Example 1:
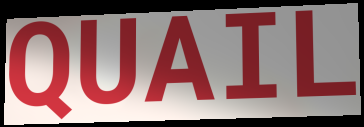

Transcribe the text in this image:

QUAIL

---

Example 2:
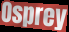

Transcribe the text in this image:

Osprey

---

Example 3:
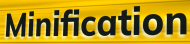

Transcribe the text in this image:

Minification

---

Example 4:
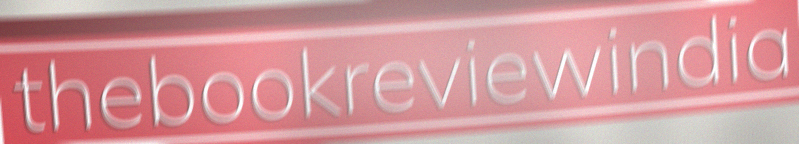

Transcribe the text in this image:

thebookreviewindia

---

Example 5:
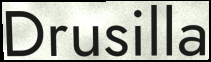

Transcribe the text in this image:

Drusilla